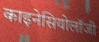
काइनेसियोलॉजी